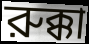
রুক্কা